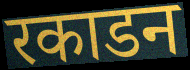
रकाडन